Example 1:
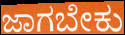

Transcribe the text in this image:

ಜಾಗಬೇಕು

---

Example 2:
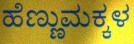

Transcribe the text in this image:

ಹೆಣ್ಣುಮಕ್ಕಳ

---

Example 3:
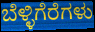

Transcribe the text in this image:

ಬೆಳ್ಳಿಗೆರೆಗಳು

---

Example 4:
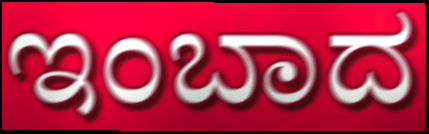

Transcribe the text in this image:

ಇಂಬಾದ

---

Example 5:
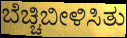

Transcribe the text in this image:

ಬೆಚ್ಚಿಬೀಳಿಸಿತು